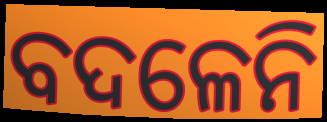
ବଦଳେନି